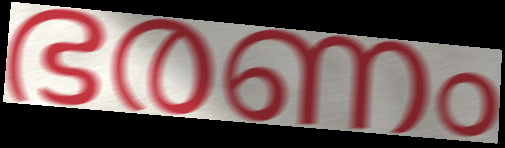
ഭരണം